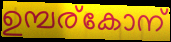
ഉമ്പര്കോന്